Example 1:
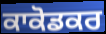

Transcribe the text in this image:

ਕਾਕੋਡਕਰ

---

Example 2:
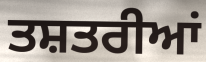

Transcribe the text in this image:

ਤਸ਼ਤਰੀਆਂ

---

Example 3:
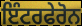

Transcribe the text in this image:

ਇੰਟਰਫੇਰੋਨ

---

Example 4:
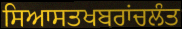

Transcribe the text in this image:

ਸਿਆਸਤਖਬਰਾਂਚਲੰਤ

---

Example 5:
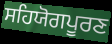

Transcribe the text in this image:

ਸਹਿਯੋਗਪੂਰਣ